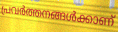
പ്രവർത്തനങ്ങൾക്കാണ്